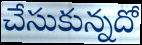
చేసుకున్నదో